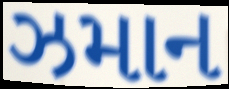
ઝમાન